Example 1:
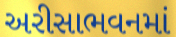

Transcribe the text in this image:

અરીસાભવનમાં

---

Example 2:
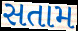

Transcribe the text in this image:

સતામ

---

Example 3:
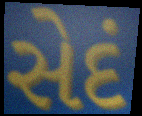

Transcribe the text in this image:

સેદં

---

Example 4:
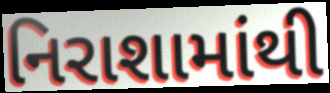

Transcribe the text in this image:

નિરાશામાંથી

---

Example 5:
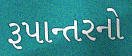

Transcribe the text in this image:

રૂપાન્તરનો